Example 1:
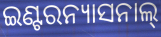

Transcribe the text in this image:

ଇଣ୍ଟରନ୍ୟାସନାଲ୍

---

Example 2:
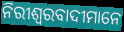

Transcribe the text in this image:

ନିରୀଶ୍ବରବାଦୀମାନେ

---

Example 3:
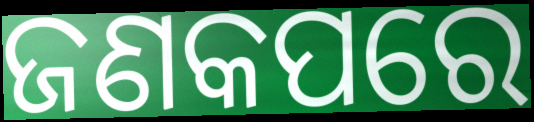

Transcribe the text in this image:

ଜଣକପରେ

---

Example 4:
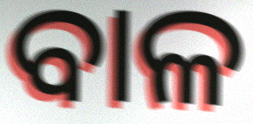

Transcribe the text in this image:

ବାଳ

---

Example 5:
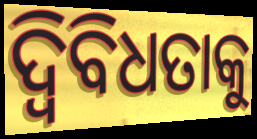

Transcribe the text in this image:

ଦ୍ୱିବିଧତାକୁ